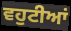
ਵਹੁਟੀਆਂ